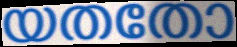
യതതോ